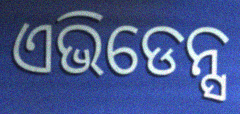
ଏଭିଡେନ୍ସ